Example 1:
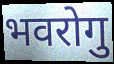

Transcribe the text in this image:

भवरोगु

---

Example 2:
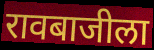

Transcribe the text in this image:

रावबाजीला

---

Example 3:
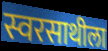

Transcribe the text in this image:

स्वरसाथीला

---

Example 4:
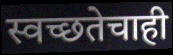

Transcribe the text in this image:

स्वच्छतेचाही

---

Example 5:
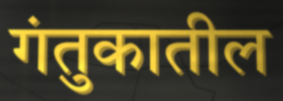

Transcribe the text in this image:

गंतुकातील